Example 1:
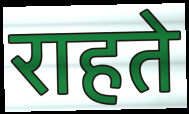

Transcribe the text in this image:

राहते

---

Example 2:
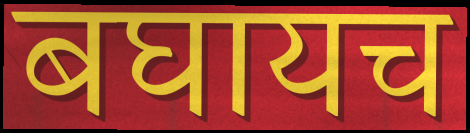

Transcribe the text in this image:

बघायच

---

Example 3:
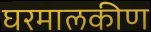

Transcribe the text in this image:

घरमालकीण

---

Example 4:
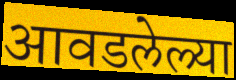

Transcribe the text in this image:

आवडलेल्या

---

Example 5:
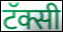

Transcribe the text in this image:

टॅक्सी